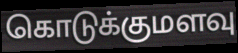
கொடுக்குமளவு